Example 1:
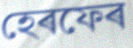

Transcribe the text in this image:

হেৰফেৰ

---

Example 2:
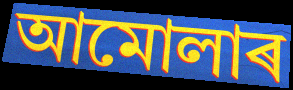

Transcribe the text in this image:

আমোলাৰ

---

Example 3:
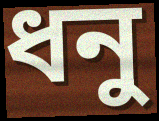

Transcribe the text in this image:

ধনু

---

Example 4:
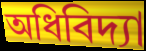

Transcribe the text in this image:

অধিবিদ্যা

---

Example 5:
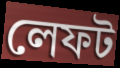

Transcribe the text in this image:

লেফট